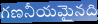
గణనీయమైనది